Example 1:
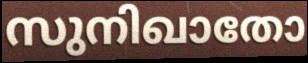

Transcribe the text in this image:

സുനിഖാതോ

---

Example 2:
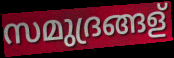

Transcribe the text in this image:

സമുദ്രങ്ങള്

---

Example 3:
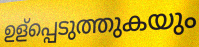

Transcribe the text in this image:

ഉള്പ്പെടുത്തുകയും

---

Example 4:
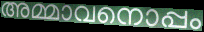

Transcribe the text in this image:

അമ്മാവനൊപ്പം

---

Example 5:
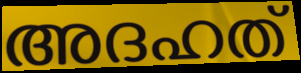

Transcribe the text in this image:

അദഹത്